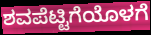
ಶವಪೆಟ್ಟಿಗೆಯೊಳಗೆ